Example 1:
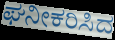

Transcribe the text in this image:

ಘನೀಕರಿಸಿದ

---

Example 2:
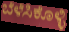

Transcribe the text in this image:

ಬೆಳೆಸಿಕೊಳ್ಳಿ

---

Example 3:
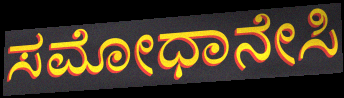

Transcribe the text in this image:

ಸಮೋಧಾನೇಸಿ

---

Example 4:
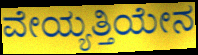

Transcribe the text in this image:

ವೇಯ್ಯತ್ತಿಯೇನ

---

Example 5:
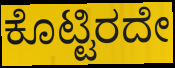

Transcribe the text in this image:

ಕೊಟ್ಟಿರದೇ